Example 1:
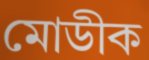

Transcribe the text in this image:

মোডীক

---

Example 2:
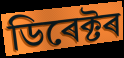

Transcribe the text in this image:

ডিৰেক্টৰ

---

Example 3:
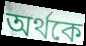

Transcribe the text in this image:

অৰ্থকে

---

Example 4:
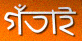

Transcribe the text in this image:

গঁতাই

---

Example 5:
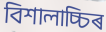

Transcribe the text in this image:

বিশালাচ্চিৰ